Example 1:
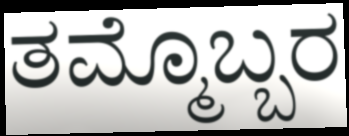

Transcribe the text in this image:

ತಮ್ಮೊಬ್ಬರ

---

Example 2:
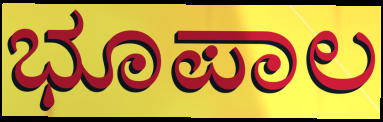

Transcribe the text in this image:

ಭೂಪಾಲ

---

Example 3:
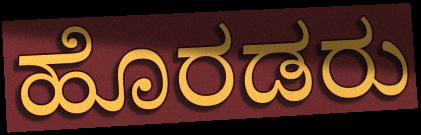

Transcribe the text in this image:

ಹೊರಡರು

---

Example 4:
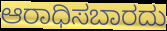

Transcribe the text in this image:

ಆರಾಧಿಸಬಾರದು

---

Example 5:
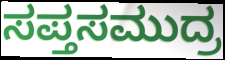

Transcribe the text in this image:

ಸಪ್ತಸಮುದ್ರ